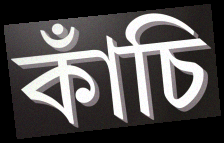
কাঁচি